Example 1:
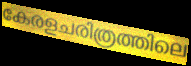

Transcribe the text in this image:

കേരളചരിത്രത്തിലെ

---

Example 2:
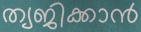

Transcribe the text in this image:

ത്യജിക്കാൻ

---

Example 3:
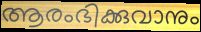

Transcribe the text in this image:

ആരംഭിക്കുവാനും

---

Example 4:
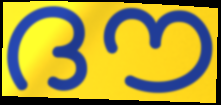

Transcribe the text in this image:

ദൗ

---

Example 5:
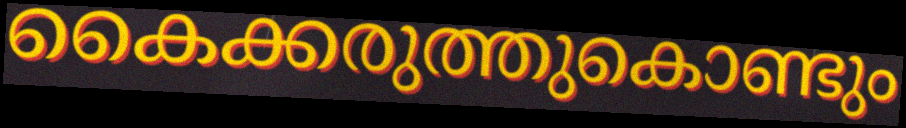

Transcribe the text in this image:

കൈക്കരുത്തുകൊണ്ടും